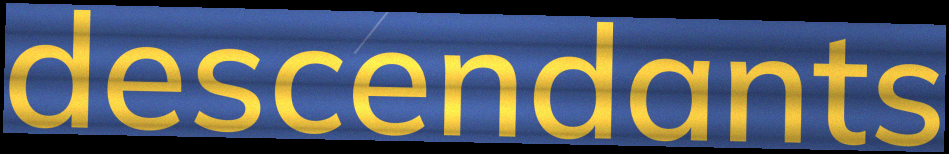
descendants